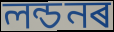
লন্ডনৰ